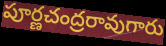
పూర్ణచంద్రరావుగారు